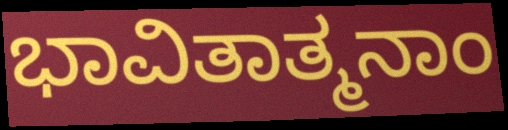
ಭಾವಿತಾತ್ಮನಾಂ